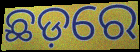
ଛଡ଼ରେ